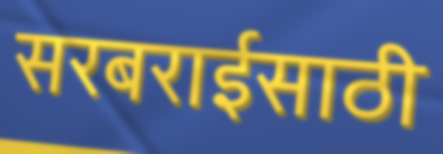
सरबराईसाठी